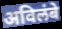
अविलंबे